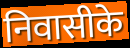
निवासीके